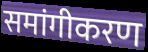
समांगीकरण